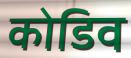
कोडिव